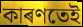
কাৰণতেই